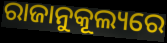
ରାଜାନୁକୂଲ୍ୟରେ